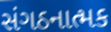
સંગઠનાત્મક